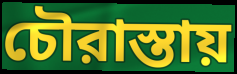
চৌরাস্তায়